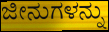
ಜೀನುಗಳನ್ನು